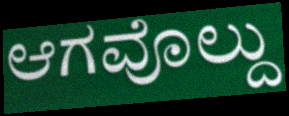
ಆಗವೊಲ್ದು